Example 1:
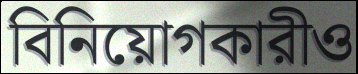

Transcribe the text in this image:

বিনিয়োগকারীও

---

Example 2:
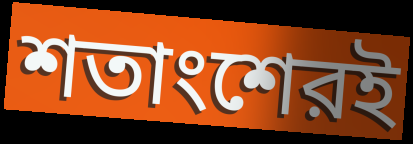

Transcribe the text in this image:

শতাংশেরই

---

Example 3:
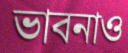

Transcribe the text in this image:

ভাবনাও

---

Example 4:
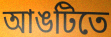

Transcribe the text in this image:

আঙটিতে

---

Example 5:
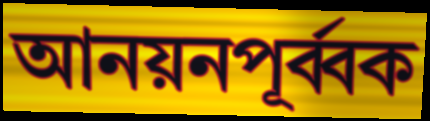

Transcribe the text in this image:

আনয়নপূর্ব্বক